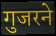
गुजरने